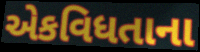
એકવિધતાના